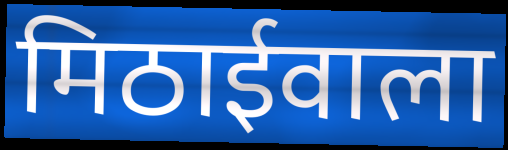
मिठाईवाला